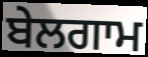
ਬੇਲਗਾਮ